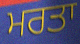
ਮਰਤਾ